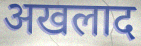
अखलाद